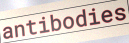
antibodies